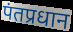
पंतप्रधान